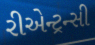
રીએન્ટ્રન્સી